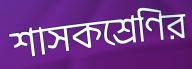
শাসকশ্রেণির